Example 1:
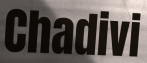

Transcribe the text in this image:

Chadivi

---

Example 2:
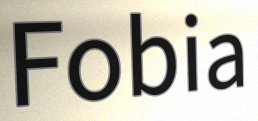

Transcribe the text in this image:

Fobia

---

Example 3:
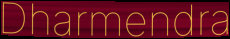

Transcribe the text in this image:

Dharmendra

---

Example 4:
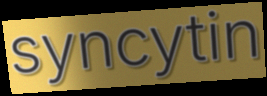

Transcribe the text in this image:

syncytin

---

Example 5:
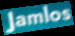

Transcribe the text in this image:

Jamlos